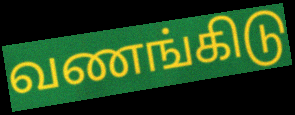
வணங்கிடு